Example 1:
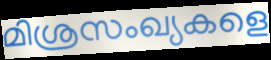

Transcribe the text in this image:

മിശ്രസംഖ്യകളെ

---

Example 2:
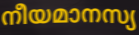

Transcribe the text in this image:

നീയമാനസ്യ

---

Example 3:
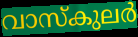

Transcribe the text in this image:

വാസ്കുലർ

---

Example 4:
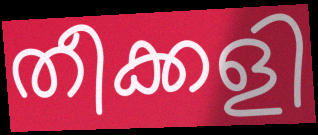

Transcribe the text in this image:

തീക്കളി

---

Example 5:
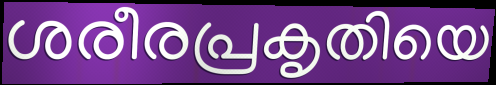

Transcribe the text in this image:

ശരീരപ്രകൃതിയെ